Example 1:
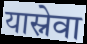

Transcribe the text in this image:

यास्नेवा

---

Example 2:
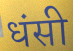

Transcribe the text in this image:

धंसी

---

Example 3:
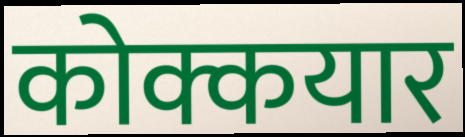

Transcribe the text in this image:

कोक्कयार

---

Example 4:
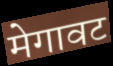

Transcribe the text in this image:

मेगावट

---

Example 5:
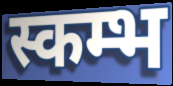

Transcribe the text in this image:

स्कम्भ